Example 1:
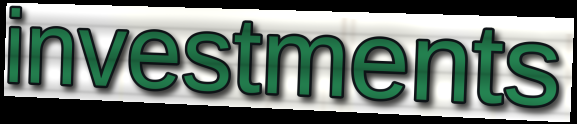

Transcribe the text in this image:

investments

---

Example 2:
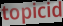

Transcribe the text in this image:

topicid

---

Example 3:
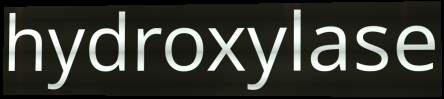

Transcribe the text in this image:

hydroxylase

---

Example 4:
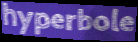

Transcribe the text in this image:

hyperbole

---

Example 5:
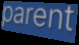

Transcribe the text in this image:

parent